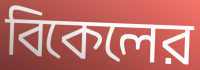
বিকেলের